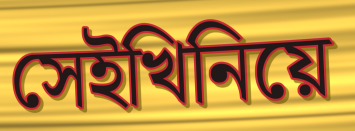
সেইখিনিয়ে